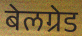
बेलग्रेड